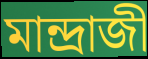
মান্দ্রাজী